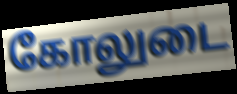
கோலுடை